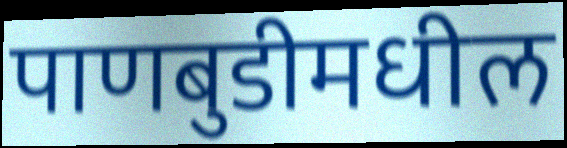
पाणबुडीमधील